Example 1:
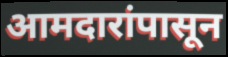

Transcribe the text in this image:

आमदारांपासून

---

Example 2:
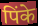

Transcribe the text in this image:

पिंके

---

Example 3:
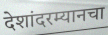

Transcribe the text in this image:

देशांदरम्यानचा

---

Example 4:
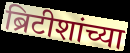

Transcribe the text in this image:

ब्रिटीशांच्या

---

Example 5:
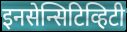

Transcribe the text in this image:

इनसेन्सिटिव्हिटी